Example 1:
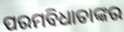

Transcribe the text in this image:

ପରମବିଧାତାଙ୍କର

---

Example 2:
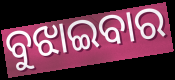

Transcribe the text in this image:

ବୁଝାଇବାର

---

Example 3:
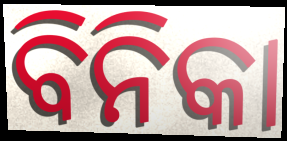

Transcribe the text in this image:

ବିନିକା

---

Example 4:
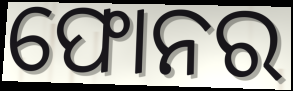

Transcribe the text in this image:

ଫୋନର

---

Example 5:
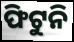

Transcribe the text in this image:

ଫିଟୁନି